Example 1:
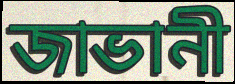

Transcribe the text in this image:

জাভানী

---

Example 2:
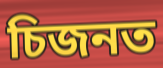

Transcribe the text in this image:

চিজনত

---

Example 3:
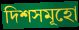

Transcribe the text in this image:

দিশসমূহো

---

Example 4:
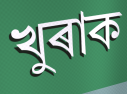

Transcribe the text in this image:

খুৰাক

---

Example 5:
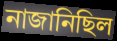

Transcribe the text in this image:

নাজানিছিল